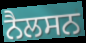
ਨੈਲਸਨ